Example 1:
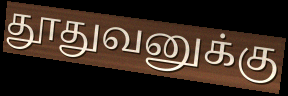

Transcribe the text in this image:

தூதுவனுக்கு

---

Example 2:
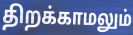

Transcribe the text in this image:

திறக்காமலும்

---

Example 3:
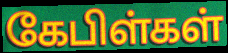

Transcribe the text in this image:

கேபிள்கள்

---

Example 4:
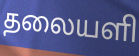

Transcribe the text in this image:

தலையளி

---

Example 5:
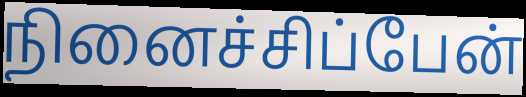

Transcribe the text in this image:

நினைச்சிப்பேன்